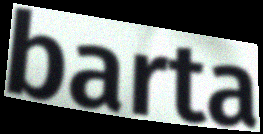
barta